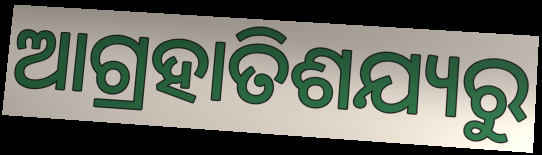
ଆଗ୍ରହାତିଶଯ୍ୟରୁ